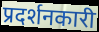
प्रदर्शनकारी